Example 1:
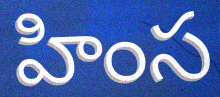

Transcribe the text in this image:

హింస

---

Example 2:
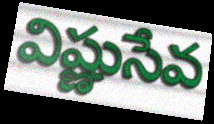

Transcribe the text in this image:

విష్ణుసేవ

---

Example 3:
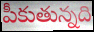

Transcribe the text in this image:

పీకుతున్నది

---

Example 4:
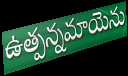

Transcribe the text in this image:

ఉత్పన్నమాయెను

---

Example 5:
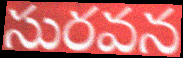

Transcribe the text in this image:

సురవన